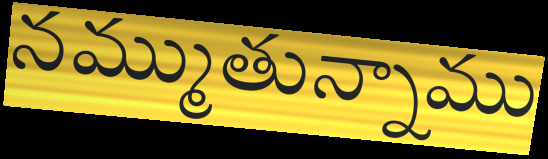
నమ్ముతున్నాము